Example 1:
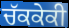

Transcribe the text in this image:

ਚੱਕਕੇਕੀ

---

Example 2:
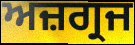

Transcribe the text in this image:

ਅਜ਼ਗ੍ਰਜ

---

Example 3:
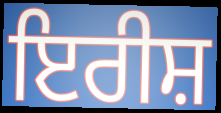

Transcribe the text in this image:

ਇਰੀਸ਼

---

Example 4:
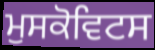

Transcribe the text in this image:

ਮੁਸਕੋਵਿਟਸ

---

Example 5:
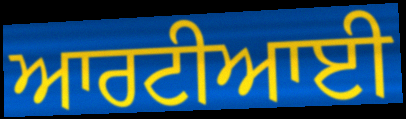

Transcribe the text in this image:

ਆਰਟੀਆਈ